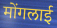
मोंगलाई